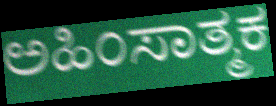
ಅಹಿಂಸಾತ್ಮಕ